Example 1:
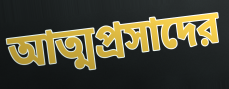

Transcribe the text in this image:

আত্মপ্রসাদের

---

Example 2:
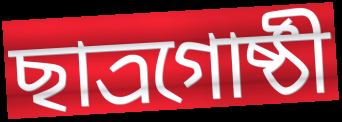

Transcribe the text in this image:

ছাত্রগোষ্ঠী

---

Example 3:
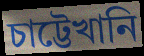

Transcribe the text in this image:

চাট্টেখানি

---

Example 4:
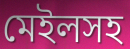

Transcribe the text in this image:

মেইলসহ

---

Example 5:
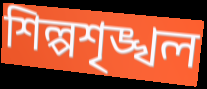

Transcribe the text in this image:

শিল্পশৃঙ্খল